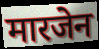
मारजेन